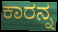
ಕಾರನ್ನ